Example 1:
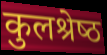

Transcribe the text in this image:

कुलश्रेष्‍ठ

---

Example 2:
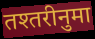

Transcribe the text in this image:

तश्तरीनुमा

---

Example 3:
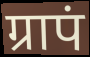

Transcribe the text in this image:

ग्रापं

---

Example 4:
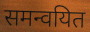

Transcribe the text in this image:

समन्वयित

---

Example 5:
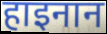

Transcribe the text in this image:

हाइनान